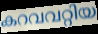
കറവവറ്റിയ